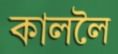
কাললৈ